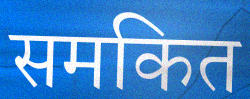
समकित